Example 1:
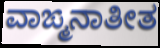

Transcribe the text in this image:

ವಾಙ್ಮನಾತೀತ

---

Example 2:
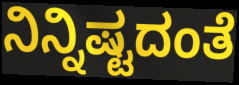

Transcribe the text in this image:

ನಿನ್ನಿಷ್ಟದಂತೆ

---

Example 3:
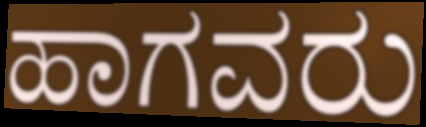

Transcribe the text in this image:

ಹಾಗವರು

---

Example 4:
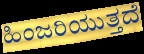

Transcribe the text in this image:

ಹಿಂಜರಿಯುತ್ತದೆ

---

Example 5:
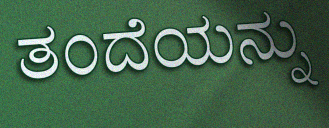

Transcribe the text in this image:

ತಂದೆಯನ್ನು